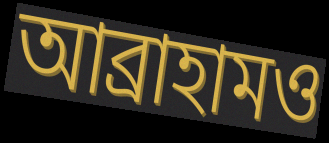
আব্রাহামও